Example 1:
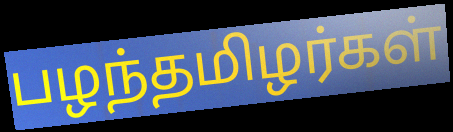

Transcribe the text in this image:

பழந்தமிழர்கள்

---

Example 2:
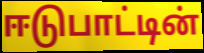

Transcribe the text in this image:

ஈடுபாட்டின்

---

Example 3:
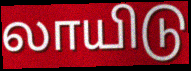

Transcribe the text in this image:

லாயிடு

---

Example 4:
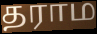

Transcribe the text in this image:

தராம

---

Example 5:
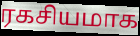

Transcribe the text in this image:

ரகசியமாக